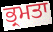
ਭ੍ਰਮਤਾ